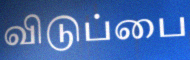
விடுப்பை